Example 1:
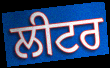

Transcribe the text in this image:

ਲੀਟਰ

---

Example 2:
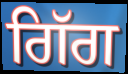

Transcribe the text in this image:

ਗਿੱਗ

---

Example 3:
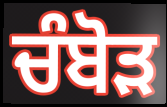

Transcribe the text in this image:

ਚੰਬੋੜ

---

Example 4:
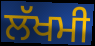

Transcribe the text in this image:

ਲੱਖਮੀ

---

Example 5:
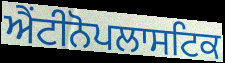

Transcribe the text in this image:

ਐਂਟੀਨੋਪਲਾਸਟਿਕ